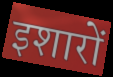
इशारों